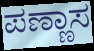
ಪಣ್ಣಾಸ